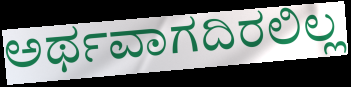
ಅರ್ಥವಾಗದಿರಲಿಲ್ಲ